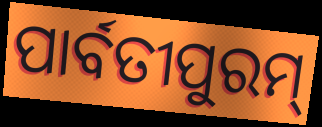
ପାର୍ବତୀପୁରମ୍